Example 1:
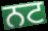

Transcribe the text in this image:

ਨਟ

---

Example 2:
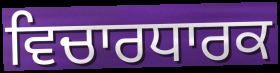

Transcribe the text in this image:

ਵਿਚਾਰਧਾਰਕ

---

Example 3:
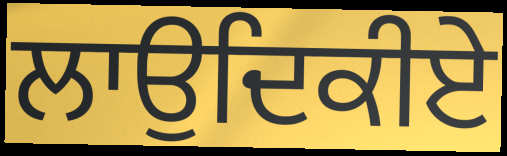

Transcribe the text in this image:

ਲਾਉਦਿਕੀਏ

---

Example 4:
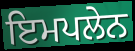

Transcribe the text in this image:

ਇਮਪਲੇਨ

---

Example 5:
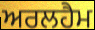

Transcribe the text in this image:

ਅਰਲਹੈਮ